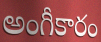
అంగీకారం